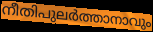
നീതിപുലർത്താനാവും